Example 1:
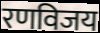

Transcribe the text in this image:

रणविजय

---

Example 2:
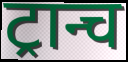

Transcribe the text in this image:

ट्रान्च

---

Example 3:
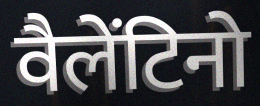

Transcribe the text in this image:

वैलेंटिनो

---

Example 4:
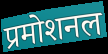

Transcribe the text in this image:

प्रमोशनल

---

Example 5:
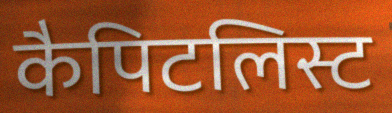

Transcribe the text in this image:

कैपिटलिस्ट